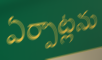
ఏర్పాట్లను